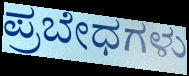
ಪ್ರಬೇಧಗಳು